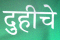
दुहीचे